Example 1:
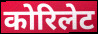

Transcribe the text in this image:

कोरिलेट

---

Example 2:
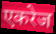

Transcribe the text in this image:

एकरेज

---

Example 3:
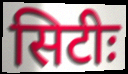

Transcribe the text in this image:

सिटीः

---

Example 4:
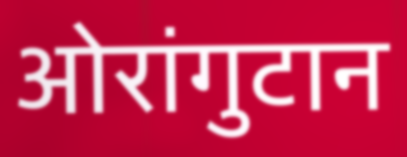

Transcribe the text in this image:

ओरांगुटान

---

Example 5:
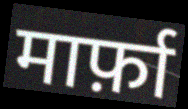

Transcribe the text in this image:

मार्फ़ा